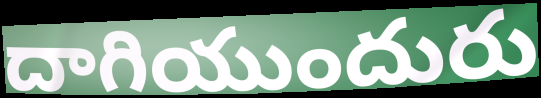
దాగియుందురు